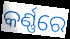
କର୍ଣ୍ଣରେ